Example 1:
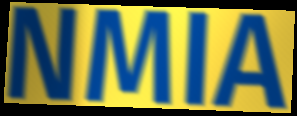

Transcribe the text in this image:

NMIA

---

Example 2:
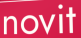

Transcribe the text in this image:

novit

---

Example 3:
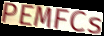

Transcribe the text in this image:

PEMFCs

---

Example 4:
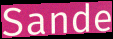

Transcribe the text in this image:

Sande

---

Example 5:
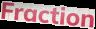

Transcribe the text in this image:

Fraction